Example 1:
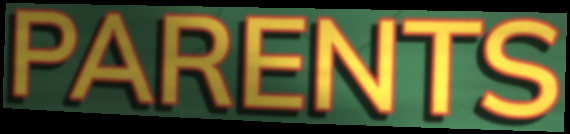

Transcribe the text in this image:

PARENTS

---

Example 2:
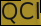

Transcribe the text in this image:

QCI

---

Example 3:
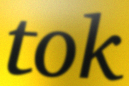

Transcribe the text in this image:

tok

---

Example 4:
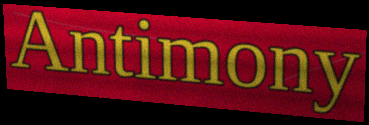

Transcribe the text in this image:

Antimony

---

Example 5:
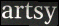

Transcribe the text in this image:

artsy